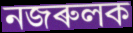
নজৰুলক